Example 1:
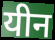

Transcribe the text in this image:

यीन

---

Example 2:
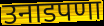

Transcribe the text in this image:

उनाडपणा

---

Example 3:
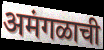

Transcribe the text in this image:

अमंगळाची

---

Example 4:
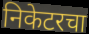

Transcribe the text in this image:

निकेटरचा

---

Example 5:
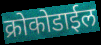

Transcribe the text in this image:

क्रोकोडाईल